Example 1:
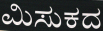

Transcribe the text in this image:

ಮಿಸುಕದ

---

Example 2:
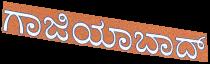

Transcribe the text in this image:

ಗಾಜಿಯಾಬಾದ್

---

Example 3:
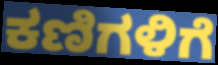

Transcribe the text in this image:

ಕಣಿಗಳಿಗೆ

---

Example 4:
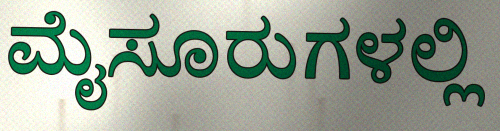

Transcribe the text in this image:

ಮೈಸೂರುಗಳಲ್ಲಿ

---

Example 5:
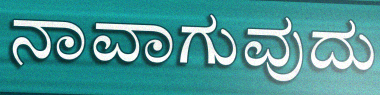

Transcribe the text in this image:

ನಾವಾಗುವುದು